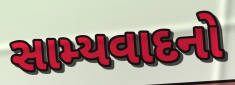
સામ્યવાદનો